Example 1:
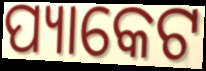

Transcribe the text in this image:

ପ୍ୟାକେଟ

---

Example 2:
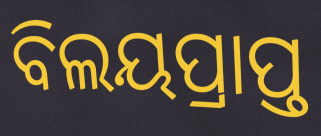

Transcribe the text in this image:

ବିଲୟପ୍ରାପ୍ତ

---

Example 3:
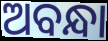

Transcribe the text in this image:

ଅବନ୍ଧା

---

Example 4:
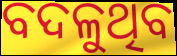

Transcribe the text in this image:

ବଦଳୁଥିବ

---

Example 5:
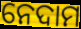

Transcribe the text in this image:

ନେଦାମ